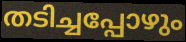
തടിച്ചപ്പോഴും